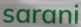
sarani